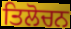
ਤਿਲੋਚਨ